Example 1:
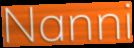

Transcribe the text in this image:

Nanni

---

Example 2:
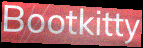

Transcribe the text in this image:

Bootkitty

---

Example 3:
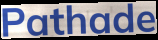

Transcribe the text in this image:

Pathade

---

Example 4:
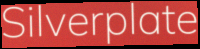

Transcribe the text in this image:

Silverplate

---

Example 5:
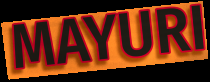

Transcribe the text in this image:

MAYURI